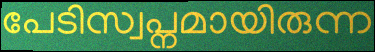
പേടിസ്വപ്നമായിരുന്ന